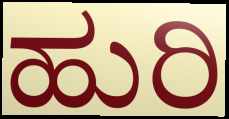
ಹುರಿ